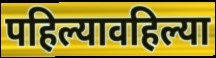
पहिल्यावहिल्या